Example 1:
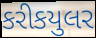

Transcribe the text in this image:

કરીકયુલર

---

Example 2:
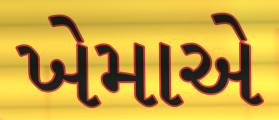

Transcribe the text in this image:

ખેમાએ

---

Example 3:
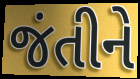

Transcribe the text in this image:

જંતીને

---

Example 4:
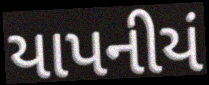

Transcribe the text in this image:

યાપનીયં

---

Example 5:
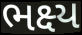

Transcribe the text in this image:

ભક્ષ્ય